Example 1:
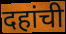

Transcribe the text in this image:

दहांची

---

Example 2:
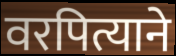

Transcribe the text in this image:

वरपित्याने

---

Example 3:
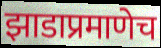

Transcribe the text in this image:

झाडाप्रमाणेच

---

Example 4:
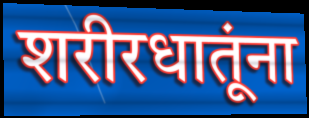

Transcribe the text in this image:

शरीरधातूंना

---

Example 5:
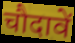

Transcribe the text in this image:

चौदावें